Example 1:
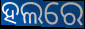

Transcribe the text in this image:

ହଲରେ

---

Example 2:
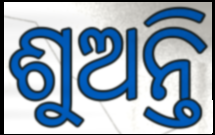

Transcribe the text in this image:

ଶୁଅନ୍ତି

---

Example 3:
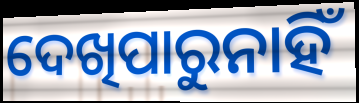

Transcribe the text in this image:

ଦେଖିପାରୁନାହିଁ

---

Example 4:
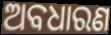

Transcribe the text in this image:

ଅବଧାରଣ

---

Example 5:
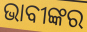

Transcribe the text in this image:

ଭାବୀଙ୍କର